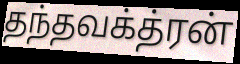
தந்தவக்த்ரன்